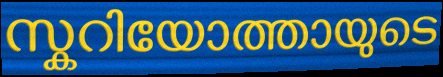
സ്കറിയോത്തായുടെ